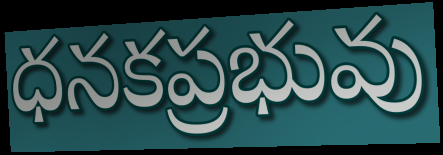
ధనకప్రభువు